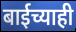
बाईच्याही